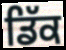
ਡਿੱਕ